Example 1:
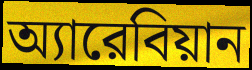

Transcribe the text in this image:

অ্যারেবিয়ান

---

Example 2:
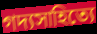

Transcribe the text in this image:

গদ্যসাহিত্যে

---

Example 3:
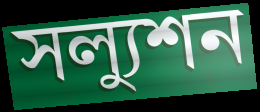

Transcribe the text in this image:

সল্যুশন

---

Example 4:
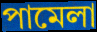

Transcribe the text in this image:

পামেলা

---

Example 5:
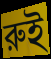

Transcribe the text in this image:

রুই